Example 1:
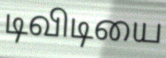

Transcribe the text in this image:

டிவிடியை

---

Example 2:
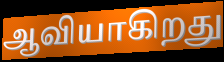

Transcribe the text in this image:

ஆவியாகிறது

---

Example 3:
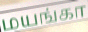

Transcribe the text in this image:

மயங்கா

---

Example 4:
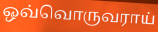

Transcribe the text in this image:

ஒவ்வொருவராய்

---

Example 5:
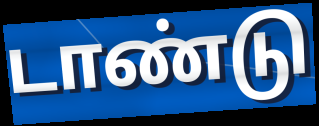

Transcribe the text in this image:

டாண்டு